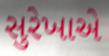
સુરેખાએ